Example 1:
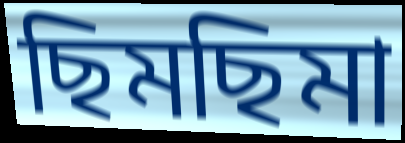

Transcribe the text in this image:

ছিমছিমা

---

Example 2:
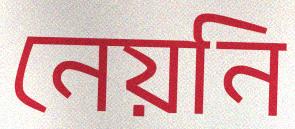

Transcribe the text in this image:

নেয়নি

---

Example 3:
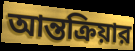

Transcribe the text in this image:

আন্তক্রিয়ার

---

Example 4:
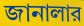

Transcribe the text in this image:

জানালার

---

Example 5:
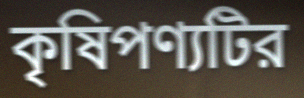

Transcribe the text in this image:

কৃষিপণ্যটির